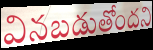
వినబడుతోందని